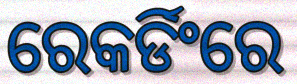
ରେକର୍ଡିଂରେ